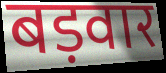
बड़वार